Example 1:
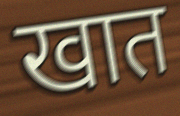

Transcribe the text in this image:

खात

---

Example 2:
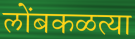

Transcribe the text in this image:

लोंबकळत्या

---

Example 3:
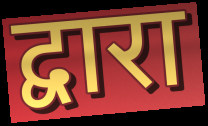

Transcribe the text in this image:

द्वारा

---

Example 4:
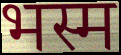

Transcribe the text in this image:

भस्म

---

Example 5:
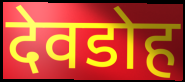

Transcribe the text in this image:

देवडोह